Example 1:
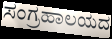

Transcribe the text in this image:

ಸಂಗ್ರಹಾಲಯದ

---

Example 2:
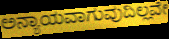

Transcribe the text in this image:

ಅನ್ಯಾಯವಾಗುವುದಿಲ್ಲವೇ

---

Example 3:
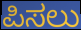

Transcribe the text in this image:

ಪಿಸಲು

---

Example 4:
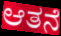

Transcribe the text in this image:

ಆತನೆ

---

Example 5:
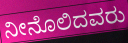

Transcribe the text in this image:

ನೀನೊಲಿದವರು